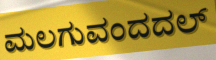
ಮಲಗುವಂದದಲ್